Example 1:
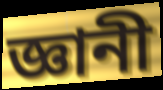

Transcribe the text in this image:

জ্ঞানী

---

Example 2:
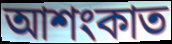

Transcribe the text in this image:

আশংকাত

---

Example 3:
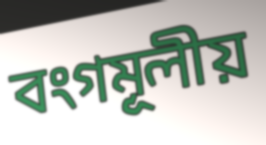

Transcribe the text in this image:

বংগমূলীয়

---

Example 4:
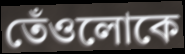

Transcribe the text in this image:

তেঁওলোকে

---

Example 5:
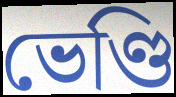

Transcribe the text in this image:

ভেণ্ডি